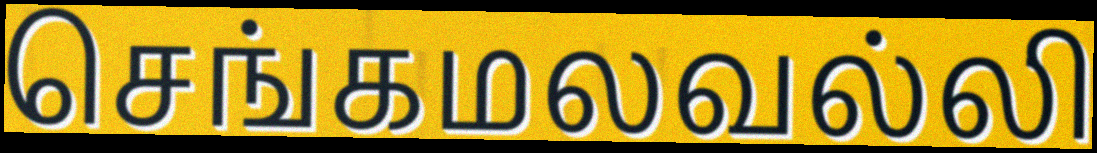
செங்கமலவல்லி